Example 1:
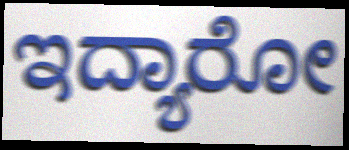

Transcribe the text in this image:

ಇದ್ಯಾರೋ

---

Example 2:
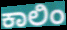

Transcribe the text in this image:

ಕಾಲಿಂ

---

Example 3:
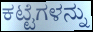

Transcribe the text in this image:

ಕಟ್ಟೆಗಳನ್ನು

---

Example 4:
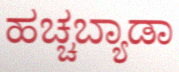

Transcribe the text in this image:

ಹಚ್ಚಬ್ಯಾಡಾ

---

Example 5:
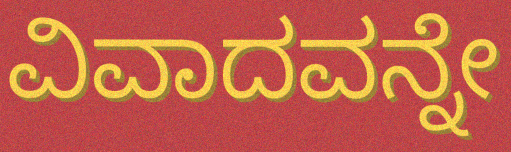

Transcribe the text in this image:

ವಿವಾದವನ್ನೇ